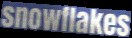
snowflakes